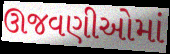
ઊજવણીઓમાં